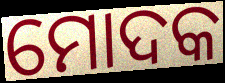
ମୋଦକ